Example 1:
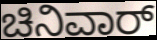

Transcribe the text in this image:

ಚಿನಿವಾರ್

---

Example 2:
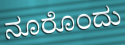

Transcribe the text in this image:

ನೂರೊಂದು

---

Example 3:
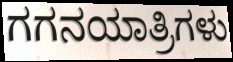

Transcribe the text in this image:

ಗಗನಯಾತ್ರಿಗಳು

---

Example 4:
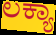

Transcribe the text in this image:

ಲಕ್ಯಾ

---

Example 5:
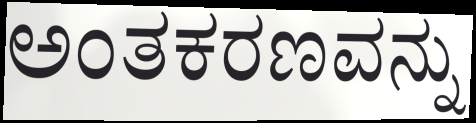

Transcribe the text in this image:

ಅಂತಕರಣವನ್ನು